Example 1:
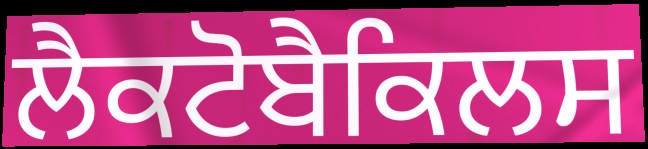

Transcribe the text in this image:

ਲੈਕਟੋਬੈਕਿਲਸ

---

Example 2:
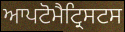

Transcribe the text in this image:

ਆਪਟੋਮੈਟ੍ਰਿਸਟਸ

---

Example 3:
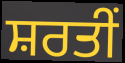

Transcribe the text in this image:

ਸ਼ਰਤੀਂ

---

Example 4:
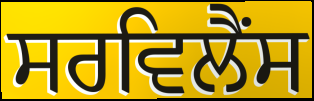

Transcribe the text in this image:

ਸਰਵਿਲੈਂਸ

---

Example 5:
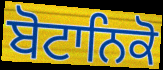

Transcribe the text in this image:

ਬੋਟਾਨਿਕੋ